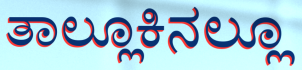
ತಾಲ್ಲೂಕಿನಲ್ಲೂ